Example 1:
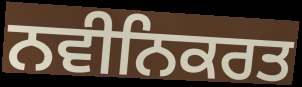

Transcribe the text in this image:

ਨਵੀਨਿਕਰਤ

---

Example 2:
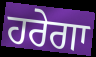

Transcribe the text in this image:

ਹਰੇਗਾ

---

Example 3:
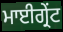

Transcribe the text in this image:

ਮਾਈਗ੍ਰੇਂਟ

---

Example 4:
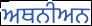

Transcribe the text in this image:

ਅਥਨੀਅਨ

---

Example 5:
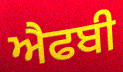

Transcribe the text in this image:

ਐਫਬੀ